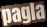
pagla